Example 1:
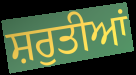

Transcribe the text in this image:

ਸ਼ਰੁਤੀਆਂ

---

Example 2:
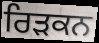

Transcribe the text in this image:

ਰਿੜਕਨ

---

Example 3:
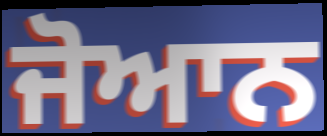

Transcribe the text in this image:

ਜੋਆਨ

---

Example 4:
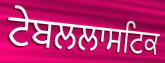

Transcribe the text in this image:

ਟੇਬਲਲਾਸਟਿਕ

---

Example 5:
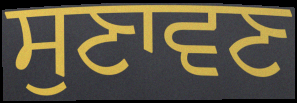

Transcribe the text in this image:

ਸੁਣਾਵਣ